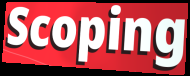
Scoping